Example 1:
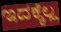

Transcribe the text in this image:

ಇದಕ್ಕೆಲ್ಲ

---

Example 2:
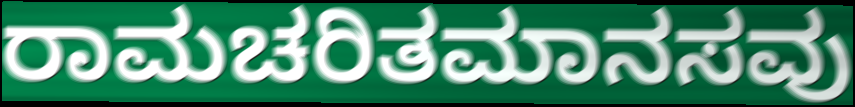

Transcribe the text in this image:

ರಾಮಚರಿತಮಾನಸವು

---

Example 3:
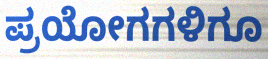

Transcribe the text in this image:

ಪ್ರಯೋಗಗಳಿಗೂ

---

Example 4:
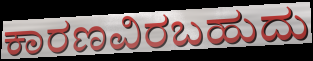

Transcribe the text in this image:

ಕಾರಣವಿರಬಹುದು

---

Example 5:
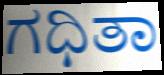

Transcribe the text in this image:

ಗಧಿತಾ